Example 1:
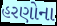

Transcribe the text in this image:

હરણોના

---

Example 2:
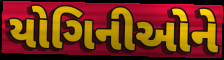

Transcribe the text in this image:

યોગિનીઓને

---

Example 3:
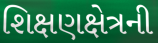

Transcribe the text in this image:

શિક્ષણક્ષેત્રની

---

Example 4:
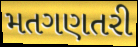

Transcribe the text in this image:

મતગણતરી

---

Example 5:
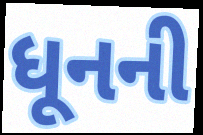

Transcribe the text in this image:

ધૂનની